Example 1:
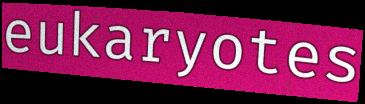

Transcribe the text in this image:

eukaryotes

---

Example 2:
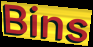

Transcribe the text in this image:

Bins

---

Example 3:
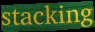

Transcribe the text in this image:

stacking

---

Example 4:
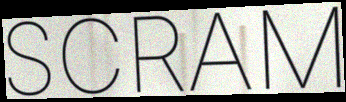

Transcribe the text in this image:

SCRAM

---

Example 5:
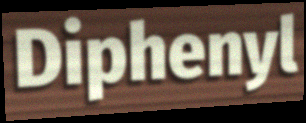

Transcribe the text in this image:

Diphenyl